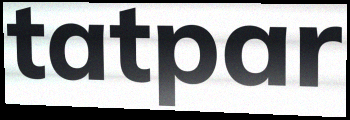
tatpar